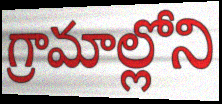
గ్రామాల్లోని